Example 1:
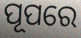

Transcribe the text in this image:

ପୂପରେ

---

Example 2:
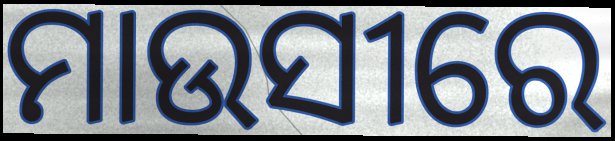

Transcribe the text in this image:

ମାଉସୀରେ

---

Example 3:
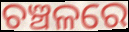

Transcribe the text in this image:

ଚଞ୍ଚଳରେ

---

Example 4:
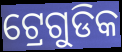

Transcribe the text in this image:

ଟ୍ରେଗୁଡିକ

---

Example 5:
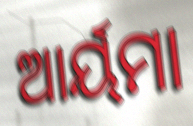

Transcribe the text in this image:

ଆର୍ୟମା